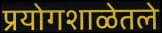
प्रयोगशाळेतले